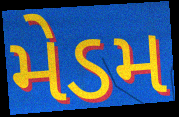
મેડમ